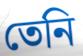
তেনি